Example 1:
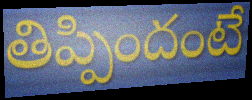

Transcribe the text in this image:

తిప్పిందంటే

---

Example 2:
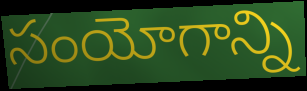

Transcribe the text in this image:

సంయోగాన్ని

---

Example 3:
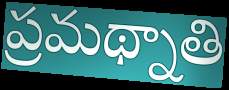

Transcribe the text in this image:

ప్రమథ్నాతి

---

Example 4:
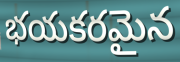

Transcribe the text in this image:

భయకరమైన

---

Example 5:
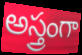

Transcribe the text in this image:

అస్త్రంగా